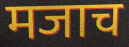
मजाच